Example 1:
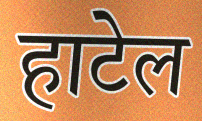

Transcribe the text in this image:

हाटेल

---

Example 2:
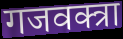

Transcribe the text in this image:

गजवक्त्रा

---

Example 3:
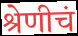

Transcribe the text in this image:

श्रेणीचं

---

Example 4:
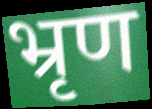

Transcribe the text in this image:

भ्रृण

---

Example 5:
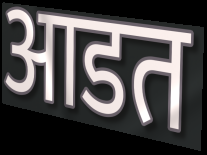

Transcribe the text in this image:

आडत